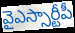
వైఎస్సార్టీపీ